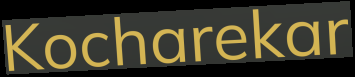
Kocharekar